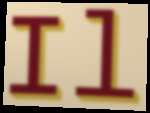
Il